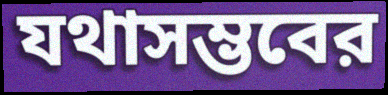
যথাসম্ভবের